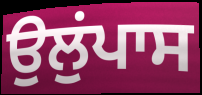
ਉਲੁਂਪਾਸ